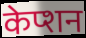
केप्शन